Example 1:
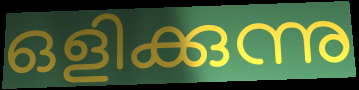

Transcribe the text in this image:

ഒളിക്കുന്നു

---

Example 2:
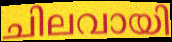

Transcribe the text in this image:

ചിലവായി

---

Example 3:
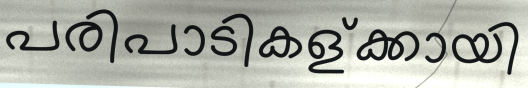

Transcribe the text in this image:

പരിപാടികള്ക്കായി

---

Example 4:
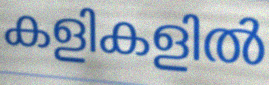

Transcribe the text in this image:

കളികളിൽ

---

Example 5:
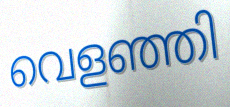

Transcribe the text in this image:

വെളഞ്ഞി